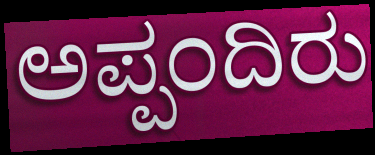
ಅಪ್ಪಂದಿರು